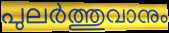
പുലർത്തുവാനും